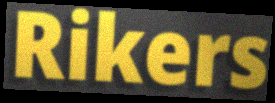
Rikers